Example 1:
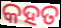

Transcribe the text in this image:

କହତ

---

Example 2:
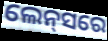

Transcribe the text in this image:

ଲେନ୍‌ସରେ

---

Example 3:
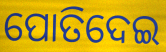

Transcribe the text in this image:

ପୋତିଦେଇ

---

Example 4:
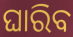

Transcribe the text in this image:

ଘାରିବ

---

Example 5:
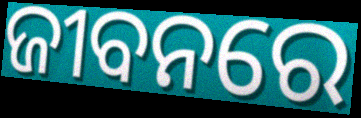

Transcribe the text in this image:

ଜୀବନରେ